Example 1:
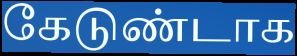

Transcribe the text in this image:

கேடுண்டாக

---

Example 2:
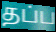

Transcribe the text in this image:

தப்ப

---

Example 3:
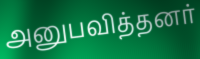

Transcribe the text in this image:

அனுபவித்தனர்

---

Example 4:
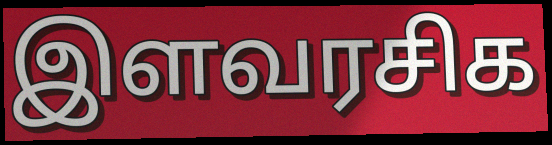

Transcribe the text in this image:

இளவரசிக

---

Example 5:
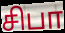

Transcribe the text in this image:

சிபா